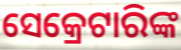
ସେକ୍ରେଟାରିଙ୍କ